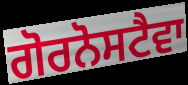
ਗੋਰਨੋਸਟੈਵਾ